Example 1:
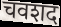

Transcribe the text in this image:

चवशद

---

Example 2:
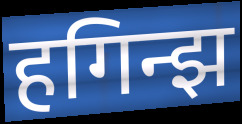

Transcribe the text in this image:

हगिन्झ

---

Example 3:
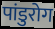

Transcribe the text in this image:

पांडुरोग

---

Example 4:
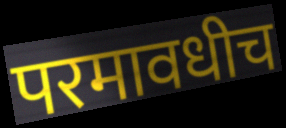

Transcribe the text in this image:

परमावधीच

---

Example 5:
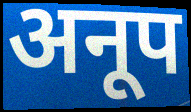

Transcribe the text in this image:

अनूप